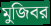
মুজিবর